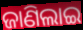
ଜାଣିଲାଇ